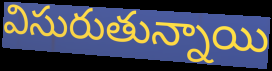
విసురుతున్నాయి